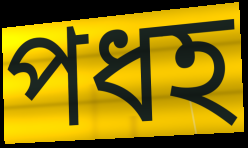
পধহ